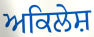
ਅਕਿਲੇਸ਼